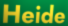
Heide